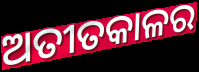
ଅତୀତକାଳର